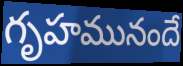
గృహమునందే